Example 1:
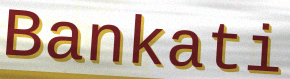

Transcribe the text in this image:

Bankati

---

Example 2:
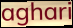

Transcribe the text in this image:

aghari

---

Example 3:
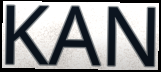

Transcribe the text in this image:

KAN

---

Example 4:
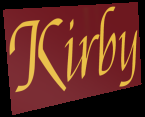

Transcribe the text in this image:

Kirby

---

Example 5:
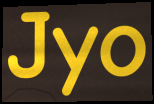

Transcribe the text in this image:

Jyo